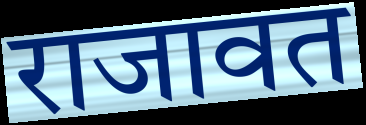
राजावत